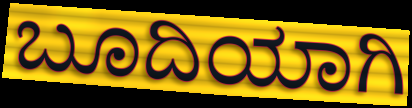
ಬೂದಿಯಾಗಿ